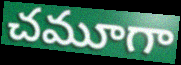
చమూగా